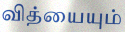
வித்யையும்